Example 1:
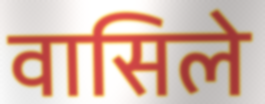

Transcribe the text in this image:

वासिले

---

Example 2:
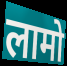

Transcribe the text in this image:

लामो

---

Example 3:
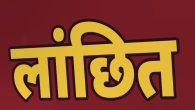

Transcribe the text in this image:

लांछित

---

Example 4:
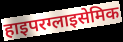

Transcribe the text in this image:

हाइपरग्लाइसेमिक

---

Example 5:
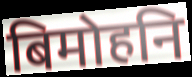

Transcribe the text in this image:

बिमोहनि